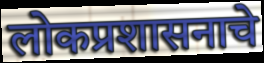
लोकप्रशासनाचे